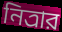
নিত্রার